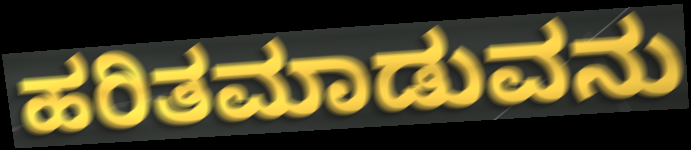
ಹರಿತಮಾಡುವನು